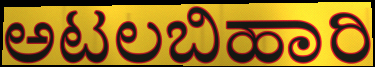
ಅಟಲಬಿಹಾರಿ